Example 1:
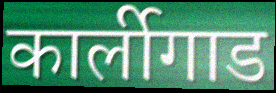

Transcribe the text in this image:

कार्लीगाड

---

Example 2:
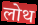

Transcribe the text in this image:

लोथ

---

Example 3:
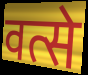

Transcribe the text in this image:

वत्से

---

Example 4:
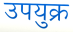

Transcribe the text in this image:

उपयुक्र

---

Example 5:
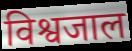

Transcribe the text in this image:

विश्वजाल